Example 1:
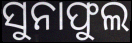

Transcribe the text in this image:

ସୁନାଫୁଲ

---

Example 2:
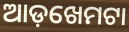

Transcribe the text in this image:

ଆଡ଼ଖେମଟା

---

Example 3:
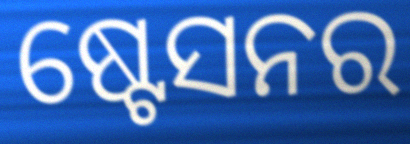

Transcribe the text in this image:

ଷ୍ଟେସନର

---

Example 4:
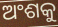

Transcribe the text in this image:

ଅଂଶକୁ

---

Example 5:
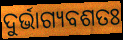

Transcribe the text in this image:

ଦୁର୍ଭାଗ୍ୟବଶତଃ